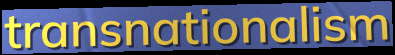
transnationalism